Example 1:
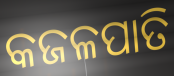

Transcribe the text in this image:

କଜଳପାତି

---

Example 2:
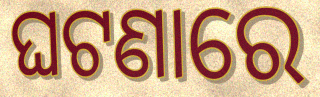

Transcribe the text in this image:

ଘଟଣାରେ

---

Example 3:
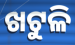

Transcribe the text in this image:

ଖଟୁଳି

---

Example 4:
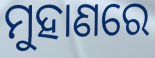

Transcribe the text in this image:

ମୁହାଣରେ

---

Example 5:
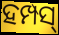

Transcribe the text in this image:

ହମ୍ପସ୍